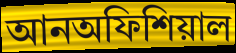
আনঅফিশিয়াল